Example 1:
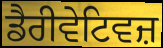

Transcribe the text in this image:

ਡੈਰੀਵੇਟਿਵਜ਼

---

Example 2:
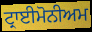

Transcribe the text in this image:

ਟ੍ਰਾਈਮੋਨੀਅਮ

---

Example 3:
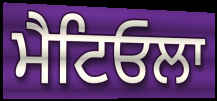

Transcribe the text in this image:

ਮੈਟਿਓਲਾ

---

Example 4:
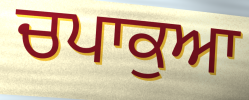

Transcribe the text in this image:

ਚਪਾਕੁਆ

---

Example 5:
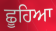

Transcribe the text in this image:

ਛੂਹਿਆ